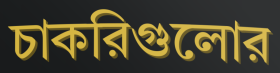
চাকরিগুলোর